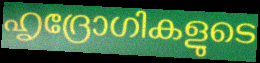
ഹൃദ്രോഗികളുടെ